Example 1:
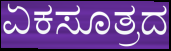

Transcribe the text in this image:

ಏಕಸೂತ್ರದ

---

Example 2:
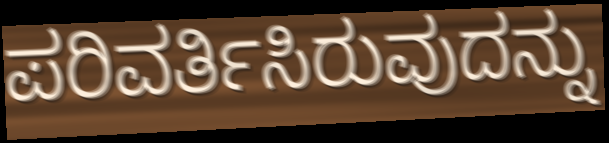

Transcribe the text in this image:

ಪರಿವರ್ತಿಸಿರುವುದನ್ನು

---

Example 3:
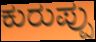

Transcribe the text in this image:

ಕುರುಪ್ಪು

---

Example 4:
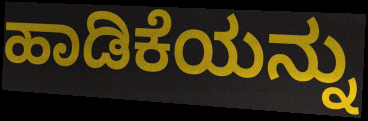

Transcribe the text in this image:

ಹಾಡಿಕೆಯನ್ನು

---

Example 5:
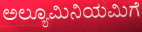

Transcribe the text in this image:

ಅಲ್ಯೂಮಿನಿಯಮಿಗೆ